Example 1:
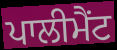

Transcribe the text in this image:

ਪਾਲੀਮੈਂਟ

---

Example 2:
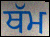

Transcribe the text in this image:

ਥੱਮ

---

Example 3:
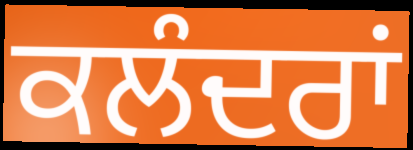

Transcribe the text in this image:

ਕਲੰਦਰਾਂ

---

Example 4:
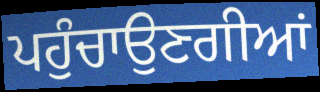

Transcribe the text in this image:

ਪਹੁੰਚਾਉਣਗੀਆਂ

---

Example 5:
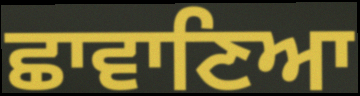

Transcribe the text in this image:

ਛਾਵਾਣਿਆ